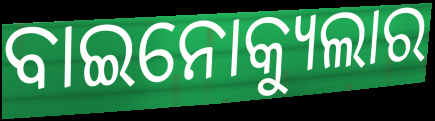
ବାଇନୋକ୍ୟୁଲାର